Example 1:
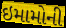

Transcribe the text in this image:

ઇમામોની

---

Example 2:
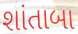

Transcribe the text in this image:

શાંતાબા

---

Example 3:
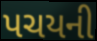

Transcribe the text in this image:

પચયની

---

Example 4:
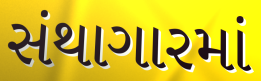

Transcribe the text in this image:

સંથાગારમાં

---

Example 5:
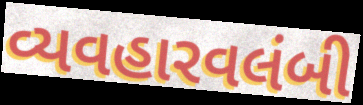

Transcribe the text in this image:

વ્યવહારવલંબી